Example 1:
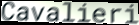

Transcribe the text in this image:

Cavalieri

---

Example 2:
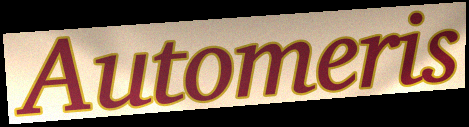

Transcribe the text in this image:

Automeris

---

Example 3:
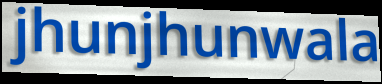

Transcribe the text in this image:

jhunjhunwala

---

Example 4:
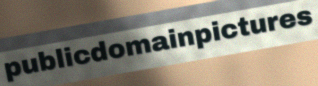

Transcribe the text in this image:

publicdomainpictures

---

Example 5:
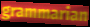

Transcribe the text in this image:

grammarian